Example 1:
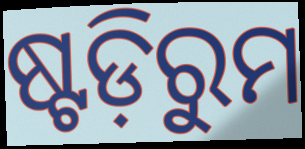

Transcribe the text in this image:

ଷ୍ଟଡ଼ିରୁମ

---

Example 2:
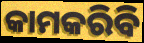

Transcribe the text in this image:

କାମକରିବି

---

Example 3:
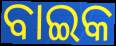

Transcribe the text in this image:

ବାଇକ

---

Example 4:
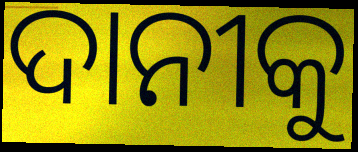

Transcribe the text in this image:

ଦାନୀକୁ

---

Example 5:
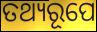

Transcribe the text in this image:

ତଥ୍ୟରୂପେ